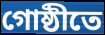
গোষ্ঠীতে